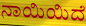
ನಾಯಿಯಿದೆ